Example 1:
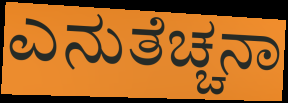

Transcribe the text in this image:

ಎನುತೆಚ್ಚನಾ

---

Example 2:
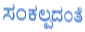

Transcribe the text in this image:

ಸಂಕಲ್ಪದಂತೆ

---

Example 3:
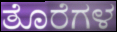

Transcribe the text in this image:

ತೊರೆಗಳ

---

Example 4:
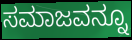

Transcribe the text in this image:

ಸಮಾಜವನ್ನೂ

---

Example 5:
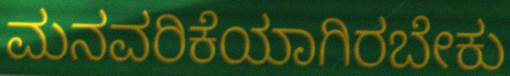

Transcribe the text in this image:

ಮನವರಿಕೆಯಾಗಿರಬೇಕು